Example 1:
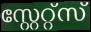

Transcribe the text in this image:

സ്റ്റേറ്റ്സ്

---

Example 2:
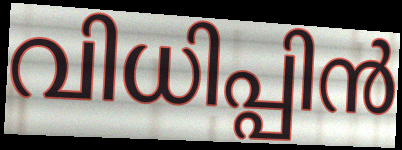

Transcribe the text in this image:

വിധിപ്പിൻ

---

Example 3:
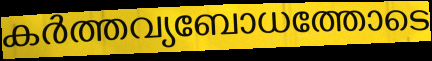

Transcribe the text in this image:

കർത്തവ്യബോധത്തോടെ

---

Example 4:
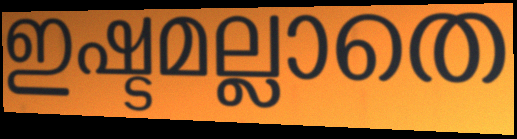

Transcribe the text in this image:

ഇഷ്ടമല്ലാതെ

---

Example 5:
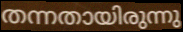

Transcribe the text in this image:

തന്നതായിരുന്നു